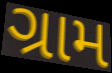
ગ્રામ